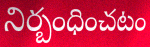
నిర్బంధించటం